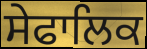
ਸੇਫਾਲਿਕ